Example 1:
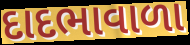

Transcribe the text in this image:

દાદભાવાળા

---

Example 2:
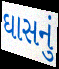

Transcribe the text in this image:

ઘાસનું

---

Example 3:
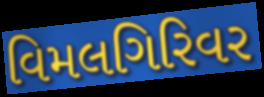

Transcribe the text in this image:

વિમલગિરિવર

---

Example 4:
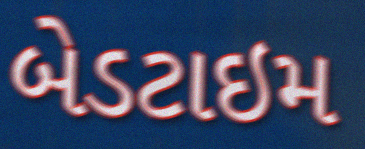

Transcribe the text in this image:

બેડટાઇમ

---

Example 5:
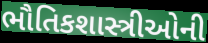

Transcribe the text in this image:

ભૌતિકશાસ્ત્રીઓની